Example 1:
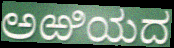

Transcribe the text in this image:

ಅಱಿಯದ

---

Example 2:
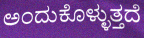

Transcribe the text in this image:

ಅಂದುಕೊಳ್ಳುತ್ತದೆ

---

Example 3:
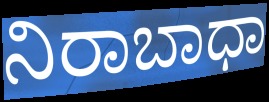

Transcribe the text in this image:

ನಿರಾಬಾಧಾ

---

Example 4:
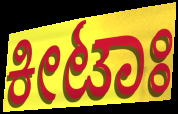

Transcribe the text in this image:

ಕೀಟಾಃ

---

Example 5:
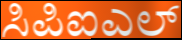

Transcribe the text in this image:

ಸಿಪಿಐಎಲ್